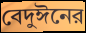
বেদুঈনের